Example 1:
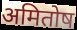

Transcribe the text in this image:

अमितोष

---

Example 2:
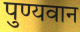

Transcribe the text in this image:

पुण्यवान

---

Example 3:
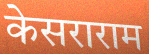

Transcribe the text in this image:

केसराराम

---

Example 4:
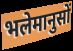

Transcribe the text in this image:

भलेमानुसों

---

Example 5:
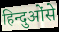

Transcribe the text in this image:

हिन्दुओंसे